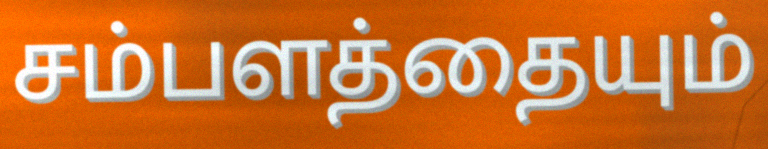
சம்பளத்தையும்